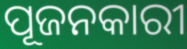
ପୂଜନକାରୀ